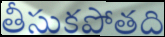
తీసుకపోతది